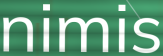
nimis